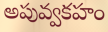
అపువ్వకహం